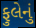
ફુલેનું